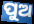
ପୁଅ